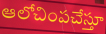
ఆలోచింపచేస్తూ